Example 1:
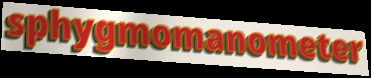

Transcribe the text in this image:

sphygmomanometer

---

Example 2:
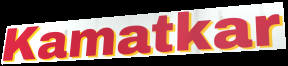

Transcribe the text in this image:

Kamatkar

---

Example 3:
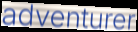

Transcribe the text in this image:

adventurer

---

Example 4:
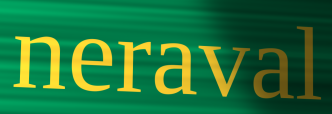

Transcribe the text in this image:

neraval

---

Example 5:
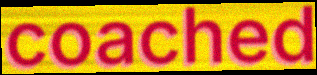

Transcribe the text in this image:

coached